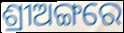
ଶ୍ରୀଅଙ୍ଗରେ